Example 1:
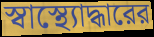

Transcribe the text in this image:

স্বাস্থ্যোদ্ধারের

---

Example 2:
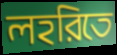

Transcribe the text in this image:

লহরিতে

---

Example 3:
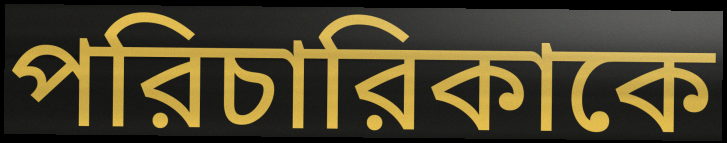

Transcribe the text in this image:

পরিচারিকাকে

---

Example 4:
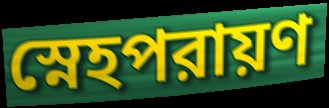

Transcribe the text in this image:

স্নেহপরায়ণ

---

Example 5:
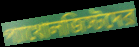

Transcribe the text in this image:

প্যাথোলজিস্টদের